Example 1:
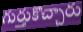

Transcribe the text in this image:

గుర్తుకొచ్చారు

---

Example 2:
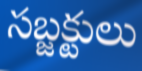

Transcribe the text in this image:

సబ్జక్టులు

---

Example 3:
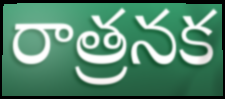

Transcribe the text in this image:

రాత్రనక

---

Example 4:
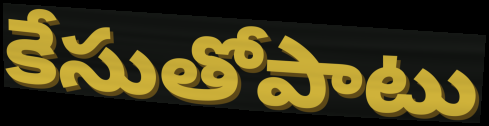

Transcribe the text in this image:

కేసుతోపాటు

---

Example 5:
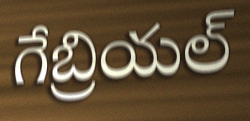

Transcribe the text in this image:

గేబ్రియల్